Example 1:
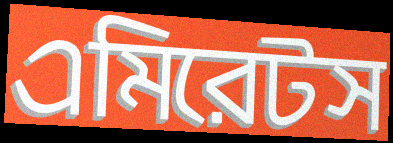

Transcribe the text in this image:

এমিরেটস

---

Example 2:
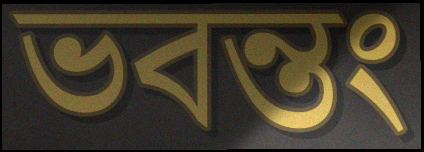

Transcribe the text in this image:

ভবন্তং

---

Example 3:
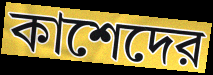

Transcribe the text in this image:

কাশেদের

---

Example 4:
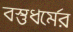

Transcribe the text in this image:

বস্তুধর্মের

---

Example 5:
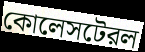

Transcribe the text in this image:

কোলেসটেরল